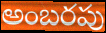
అంబరపు